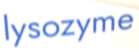
lysozyme